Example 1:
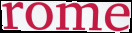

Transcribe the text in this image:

rome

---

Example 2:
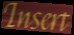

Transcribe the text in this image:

Insert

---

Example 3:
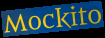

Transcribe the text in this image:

Mockito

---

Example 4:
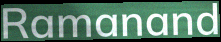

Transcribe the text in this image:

Ramanand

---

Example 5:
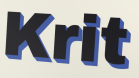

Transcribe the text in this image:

Krit